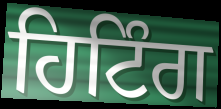
ਹਿਟਿੰਗ